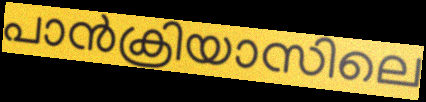
പാൻക്രിയാസിലെ